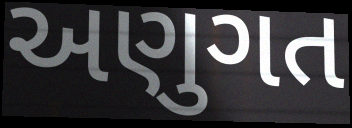
અણુગત